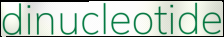
dinucleotide